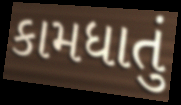
કામધાતું